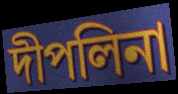
দীপলিনা